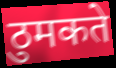
ठुमकते